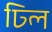
ঢিল